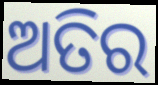
ଅତିର